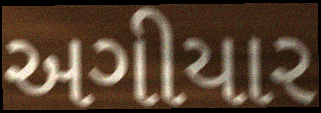
અગીયાર